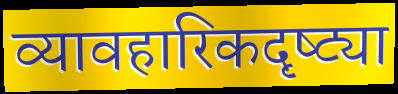
व्यावहारिकदृष्ट्या